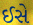
ઈસે